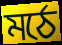
মঠে